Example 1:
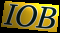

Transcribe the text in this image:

IOB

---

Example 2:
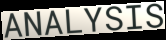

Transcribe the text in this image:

ANALYSIS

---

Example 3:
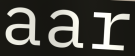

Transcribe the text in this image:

aar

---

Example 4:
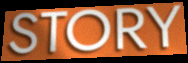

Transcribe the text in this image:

STORY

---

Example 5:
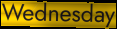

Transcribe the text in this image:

Wednesday